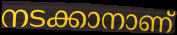
നടക്കാനാണ്